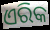
ଏରିକ